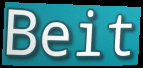
Beit